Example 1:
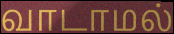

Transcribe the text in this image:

வாடாமல்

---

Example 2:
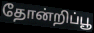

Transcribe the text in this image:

தோன்றிப்பூ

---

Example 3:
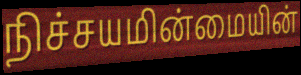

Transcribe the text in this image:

நிச்சயமின்மையின்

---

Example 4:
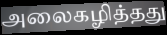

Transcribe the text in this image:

அலைகழித்தது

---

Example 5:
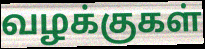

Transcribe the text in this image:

வழக்குகள்